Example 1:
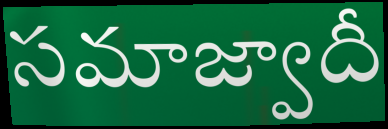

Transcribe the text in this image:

సమాజ్వాదీ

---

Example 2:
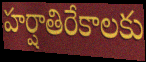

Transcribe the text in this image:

హర్షాతిరేకాలకు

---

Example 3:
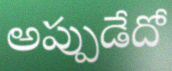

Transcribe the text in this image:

అప్పుడేదో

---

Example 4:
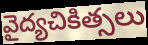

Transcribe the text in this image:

వైద్యచికిత్సలు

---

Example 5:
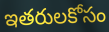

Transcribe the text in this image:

ఇతరులకోసం